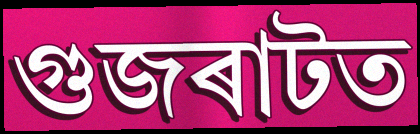
গুজৰাটত